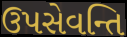
ઉપસેવન્તિ